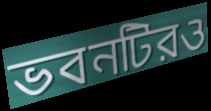
ভবনটিরও